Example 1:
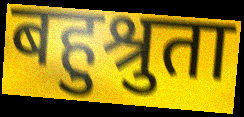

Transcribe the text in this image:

बहुश्रुता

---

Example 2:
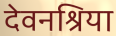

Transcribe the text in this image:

देवनश्रिया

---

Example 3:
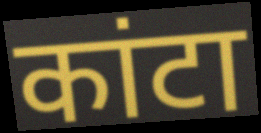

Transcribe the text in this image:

कांटा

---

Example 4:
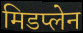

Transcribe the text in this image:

मिडप्लेन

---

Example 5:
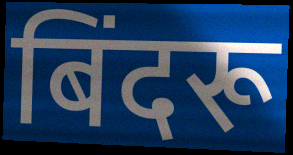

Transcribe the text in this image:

बिंदरू